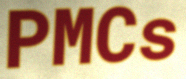
PMCs